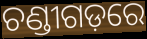
ଚଣ୍ଡୀଗଡ଼ରେ